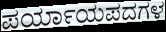
ಪರ್ಯಾಯಪದಗಳ